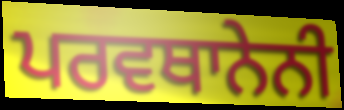
ਪਰਵਥਾਨੇਨੀ